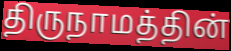
திருநாமத்தின்